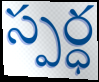
స్పర్ధ